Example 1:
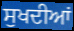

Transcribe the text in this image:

ਸੁਖਦੀਆਂ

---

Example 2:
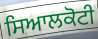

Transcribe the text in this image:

ਸਿਆਲਕੋਟੀ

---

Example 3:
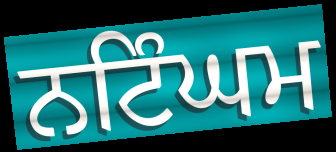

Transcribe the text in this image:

ਨਟਿੰਘਮ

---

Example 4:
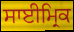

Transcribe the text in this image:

ਸਾਈਮ੍ਰਿਕ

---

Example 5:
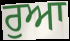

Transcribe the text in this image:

ਰੁਆ